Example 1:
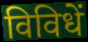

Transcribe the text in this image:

विविधें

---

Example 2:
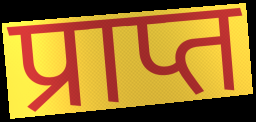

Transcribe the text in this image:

प्राप्‍त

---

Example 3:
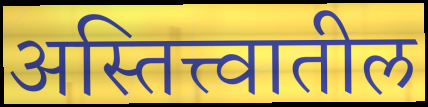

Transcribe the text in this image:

अस्तित्त्वातील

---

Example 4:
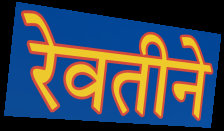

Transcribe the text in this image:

रेवतीने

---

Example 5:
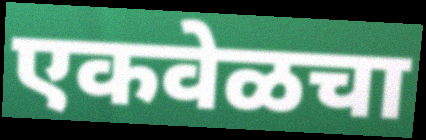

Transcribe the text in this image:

एकवेळचा